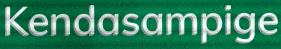
Kendasampige